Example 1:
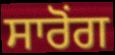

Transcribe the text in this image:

ਸਾਰੋਂਗ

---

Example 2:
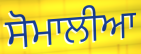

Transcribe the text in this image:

ਸੋਮਾਲੀਆ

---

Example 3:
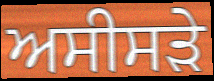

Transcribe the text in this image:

ਅਸੀਸੜੇ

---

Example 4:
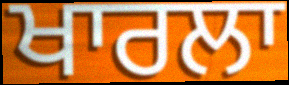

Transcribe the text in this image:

ਖਾਰਲਾ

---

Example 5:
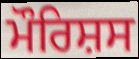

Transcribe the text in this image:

ਮੌਰਿਸ਼ਸ